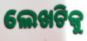
ଲେଖଟିକୁ